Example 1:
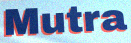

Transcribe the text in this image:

Mutra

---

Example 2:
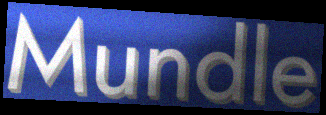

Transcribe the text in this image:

Mundle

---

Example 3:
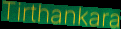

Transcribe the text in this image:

Tirthankara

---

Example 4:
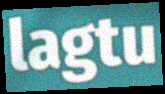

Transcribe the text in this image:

lagtu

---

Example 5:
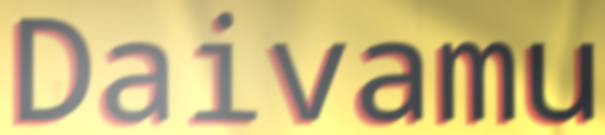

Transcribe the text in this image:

Daivamu